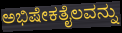
ಅಭಿಷೇಕತೈಲವನ್ನು